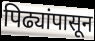
पिढ्यांपासून